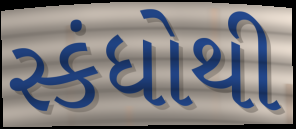
સ્કંધોથી